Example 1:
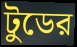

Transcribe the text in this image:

টুডের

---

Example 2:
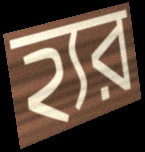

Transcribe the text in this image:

হ্যর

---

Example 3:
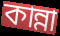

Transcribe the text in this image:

কান্না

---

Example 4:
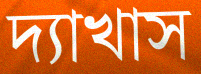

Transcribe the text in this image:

দ্যাখাস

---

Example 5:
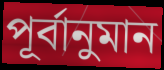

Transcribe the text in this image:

পূর্বানুমান